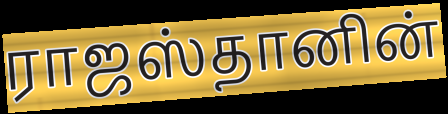
ராஜஸ்தானின்